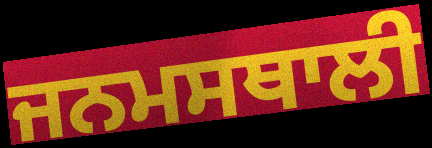
ਜਨਮਸਥਾਲੀ